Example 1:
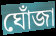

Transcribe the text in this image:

ঘোঁজা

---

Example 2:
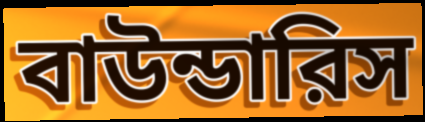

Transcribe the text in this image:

বাউন্ডারিস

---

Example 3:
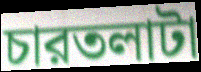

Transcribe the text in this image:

চারতলাটা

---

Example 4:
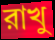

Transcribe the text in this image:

রাখু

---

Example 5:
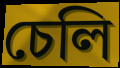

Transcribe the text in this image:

চেলি